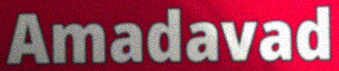
Amadavad